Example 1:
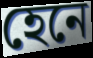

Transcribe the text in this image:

হেনে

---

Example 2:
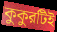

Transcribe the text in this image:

কুকুরটিই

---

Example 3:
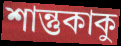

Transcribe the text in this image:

শান্তুকাকু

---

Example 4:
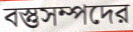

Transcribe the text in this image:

বস্তুসম্পদের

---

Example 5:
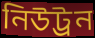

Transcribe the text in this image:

নিউট্রন